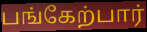
பங்கேற்பார்